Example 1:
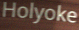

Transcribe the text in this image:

Holyoke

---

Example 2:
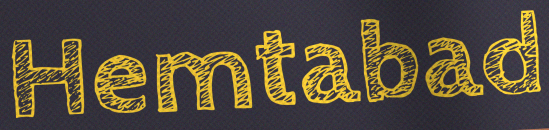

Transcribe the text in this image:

Hemtabad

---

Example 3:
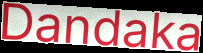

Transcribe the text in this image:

Dandaka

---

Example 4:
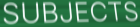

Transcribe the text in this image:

SUBJECTS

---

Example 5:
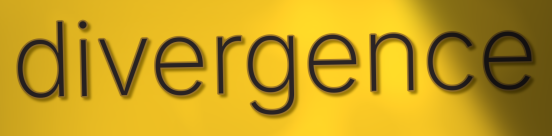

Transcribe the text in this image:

divergence